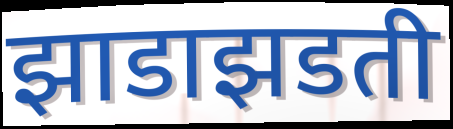
झाडाझडती